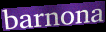
barnona